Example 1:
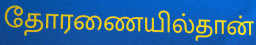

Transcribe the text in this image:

தோரணையில்தான்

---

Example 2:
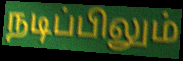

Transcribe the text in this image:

நடிப்பிலும்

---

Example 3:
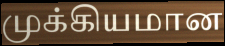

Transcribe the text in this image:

முக்கியமான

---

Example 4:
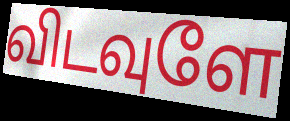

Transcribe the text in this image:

விடவுளே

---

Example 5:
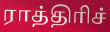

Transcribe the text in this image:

ராத்திரிச்